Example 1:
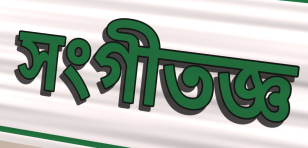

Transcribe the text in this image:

সংগীতজ্ঞ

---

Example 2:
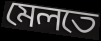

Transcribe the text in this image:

মেলতে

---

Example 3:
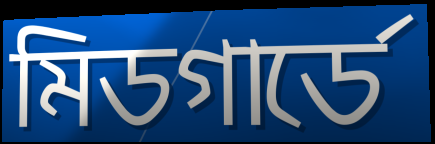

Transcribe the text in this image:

মিডগার্ডে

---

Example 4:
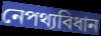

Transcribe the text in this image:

নেপথ্যবিধান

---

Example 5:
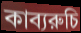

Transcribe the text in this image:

কাব্যরুচি